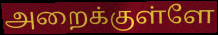
அறைக்குள்ளே